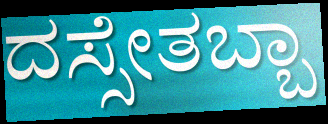
ದಸ್ಸೇತಬ್ಬಾ